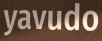
yavudo